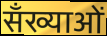
सँख्याओं